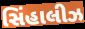
સિંહાલીઝ